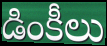
డింకీలు